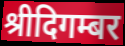
श्रीदिगम्बर